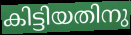
കിട്ടിയതിനു